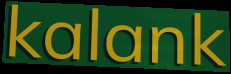
kalank